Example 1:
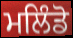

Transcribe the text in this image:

ਮਲਿੰਡੋ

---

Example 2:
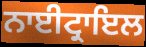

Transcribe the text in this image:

ਨਾਈਟ੍ਰਾਇਲ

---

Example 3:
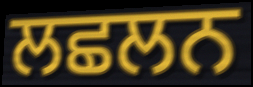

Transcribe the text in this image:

ਲਛਲਨ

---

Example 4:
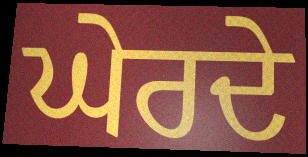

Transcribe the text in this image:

ਘੇਰਦੇ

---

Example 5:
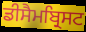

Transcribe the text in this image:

ਡੀਸੈਮਬ੍ਰਿਸਟ